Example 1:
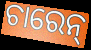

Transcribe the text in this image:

ଚାରେନ୍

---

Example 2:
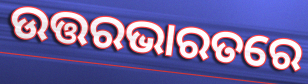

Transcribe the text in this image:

ଉତ୍ତରଭାରତରେ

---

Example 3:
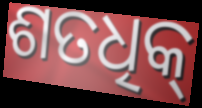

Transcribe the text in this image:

ଶତଧିକ୍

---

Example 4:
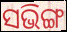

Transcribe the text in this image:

ସଭିଙ୍ଗ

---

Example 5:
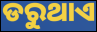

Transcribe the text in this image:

ଡରୁଥାଏ